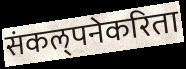
संकल्पनेकरिता